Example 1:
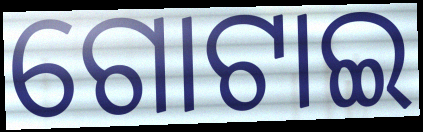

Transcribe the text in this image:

ଗୋଟାଇ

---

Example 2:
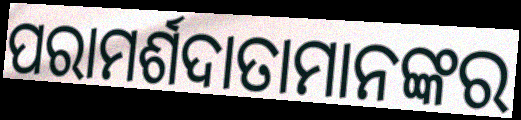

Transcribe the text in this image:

ପରାମର୍ଶଦାତାମାନଙ୍କର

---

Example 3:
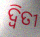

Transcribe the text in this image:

ଦ୍ୱିତୀ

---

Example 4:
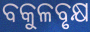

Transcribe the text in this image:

ବକୁଳବୃକ୍ଷ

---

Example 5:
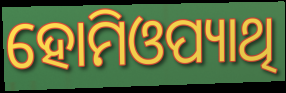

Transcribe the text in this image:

ହୋମିଓପ୍ୟାଥି